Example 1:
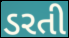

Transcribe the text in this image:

ડરતી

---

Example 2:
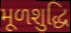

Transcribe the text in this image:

મૂળશુદ્ધિ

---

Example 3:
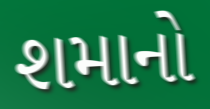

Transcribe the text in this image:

શમાનો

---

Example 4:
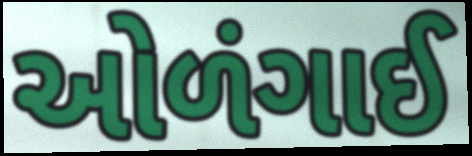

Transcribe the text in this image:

ઓળંગાઈ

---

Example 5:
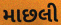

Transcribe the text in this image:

માછલી